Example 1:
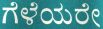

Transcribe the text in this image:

ಗೆಳೆಯರೇ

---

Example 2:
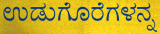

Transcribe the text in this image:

ಉಡುಗೊರೆಗಳನ್ನ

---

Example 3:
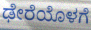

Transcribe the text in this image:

ಢೇರೆಯೊಳಗೆ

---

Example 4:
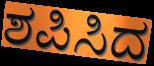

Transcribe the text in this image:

ಶಪಿಸಿದ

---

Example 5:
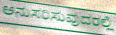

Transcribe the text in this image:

ಅನುಸರಿಸುವುದರಲ್ಲಿ